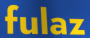
fulaz